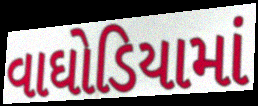
વાઘોડિયામાં